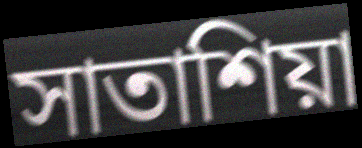
সাতাশিয়া